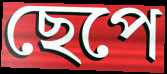
ছেপে